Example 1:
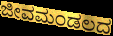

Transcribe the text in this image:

ಜೀವಮಂಡಲದ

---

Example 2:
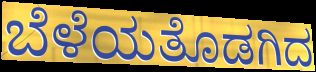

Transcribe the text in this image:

ಬೆಳೆಯತೊಡಗಿದ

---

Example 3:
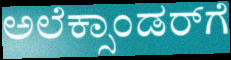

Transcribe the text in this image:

ಅಲೆಕ್ಸಾಂಡರ್‌ಗೆ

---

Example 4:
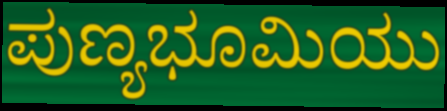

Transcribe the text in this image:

ಪುಣ್ಯಭೂಮಿಯು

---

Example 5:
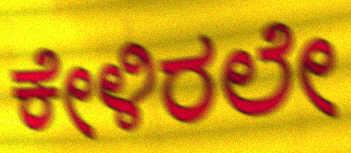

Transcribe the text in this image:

ಕೇಳಿರಲೇ